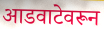
आडवाटेवरून